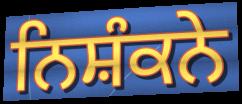
ਨਿਸ਼ੰਕਨੇ